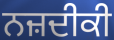
ਨਜ਼ਦੀਕੀ